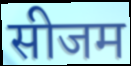
सीजम